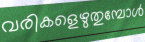
വരികളെഴുതുമ്പോൾ